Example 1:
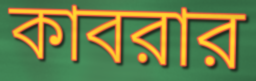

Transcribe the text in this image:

কাবরার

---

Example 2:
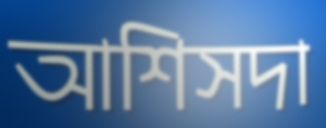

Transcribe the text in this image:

আশিসদা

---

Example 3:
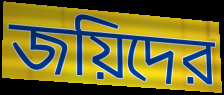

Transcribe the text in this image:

জয়িদের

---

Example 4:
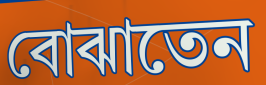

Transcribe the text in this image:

বোঝাতেন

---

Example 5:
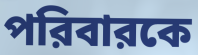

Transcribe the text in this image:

পরিবারকে